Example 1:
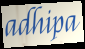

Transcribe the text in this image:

adhipa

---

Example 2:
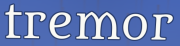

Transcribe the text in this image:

tremor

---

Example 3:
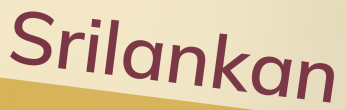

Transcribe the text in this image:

Srilankan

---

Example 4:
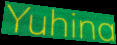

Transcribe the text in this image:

Yuhina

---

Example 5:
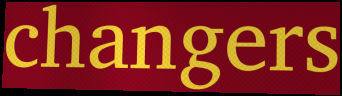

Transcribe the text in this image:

changers